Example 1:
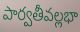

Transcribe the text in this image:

పార్వతీవల్లభా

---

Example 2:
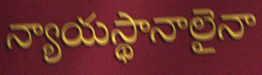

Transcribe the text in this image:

న్యాయస్థానాలైనా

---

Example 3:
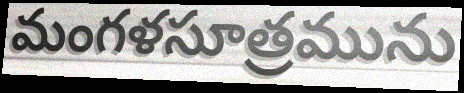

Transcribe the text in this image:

మంగళసూత్రమును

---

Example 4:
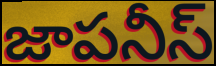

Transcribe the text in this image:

జాపనీస్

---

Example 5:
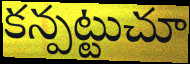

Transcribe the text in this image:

కన్పట్టుచూ